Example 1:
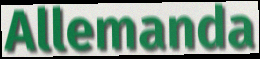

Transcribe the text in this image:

Allemanda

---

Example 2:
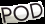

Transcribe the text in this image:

POD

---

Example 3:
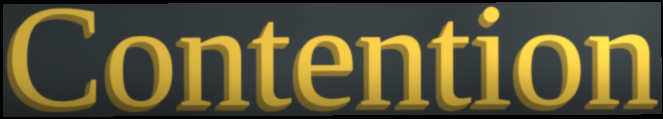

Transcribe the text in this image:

Contention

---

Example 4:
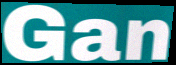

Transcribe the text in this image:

Gan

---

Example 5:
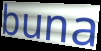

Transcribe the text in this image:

buna